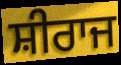
ਸ਼ੀਰਾਜ